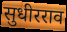
सुधीरराव